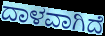
ದಾಳವಾಗಿದೆ